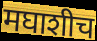
मघाशीच